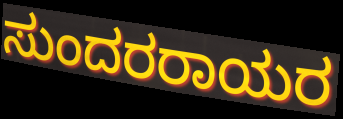
ಸುಂದರರಾಯರ